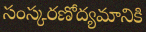
సంస్కరణోద్యమానికి